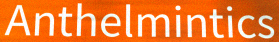
Anthelmintics